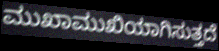
ಮುಖಾಮುಖಿಯಾಗಿಸುತ್ತದೆ